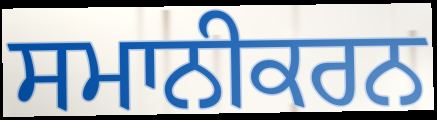
ਸਮਾਨੀਕਰਨ